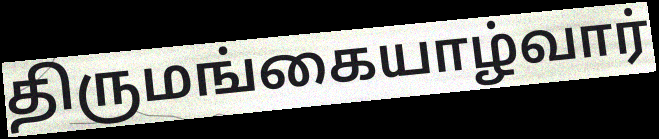
திருமங்கையாழ்வார்